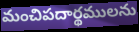
మంచిపదార్థములను